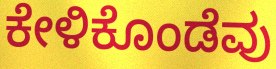
ಕೇಳಿಕೊಂಡೆವು